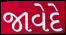
જાવેદે